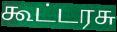
கூட்டரசு